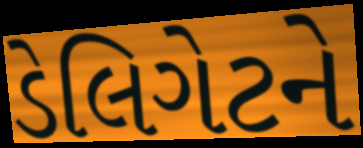
ડેલિગેટને